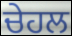
ਚੇਹਲ